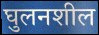
घुलनशील